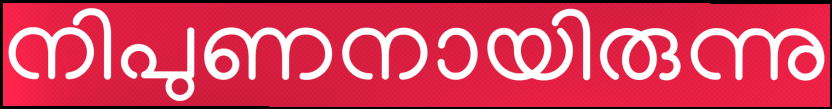
നിപുണനായിരുന്നു